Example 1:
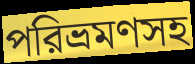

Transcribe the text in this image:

পরিভ্রমণসহ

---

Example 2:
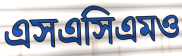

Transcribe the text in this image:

এসএসিএমও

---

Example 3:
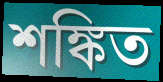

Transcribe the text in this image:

শঙ্কিত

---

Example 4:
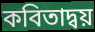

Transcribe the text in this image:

কবিতাদ্বয়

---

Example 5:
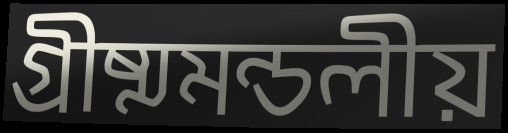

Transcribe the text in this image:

গ্রীষ্মমন্ডলীয়